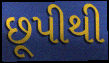
છૂપીથી